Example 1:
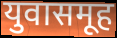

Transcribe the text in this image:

युवासमूह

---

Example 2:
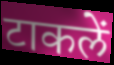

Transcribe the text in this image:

टाकलें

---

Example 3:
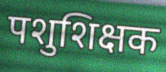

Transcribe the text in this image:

पशुशिक्षक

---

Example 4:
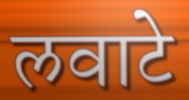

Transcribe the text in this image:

लवाटे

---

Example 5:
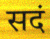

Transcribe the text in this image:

सदं